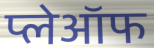
प्लेऑफ